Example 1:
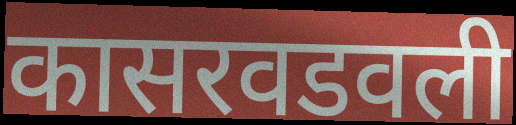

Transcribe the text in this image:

कासरवडवली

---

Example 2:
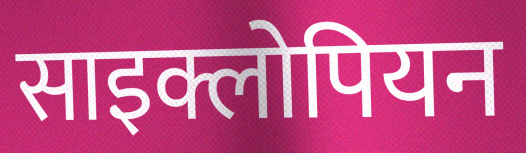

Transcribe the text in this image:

साइक्लोपियन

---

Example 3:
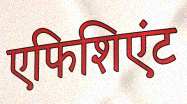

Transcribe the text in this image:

एफिशिएंट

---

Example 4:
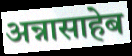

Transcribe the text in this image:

अन्नासाहेब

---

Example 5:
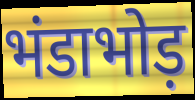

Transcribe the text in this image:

भंडाभोड़